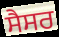
ਸੈਸਰ